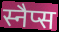
स्नैप्स